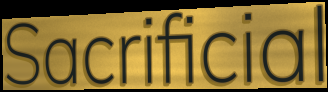
Sacrificial